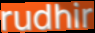
rudhir